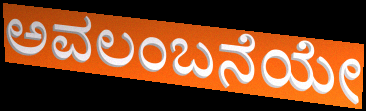
ಅವಲಂಬನೆಯೇ